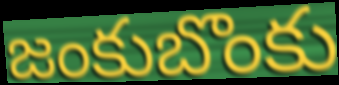
జంకుబొంకు